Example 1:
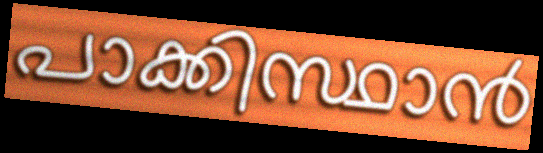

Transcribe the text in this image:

പാക്കിസ്ഥാൻ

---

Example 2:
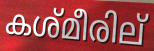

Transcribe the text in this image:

കശ്മീരില്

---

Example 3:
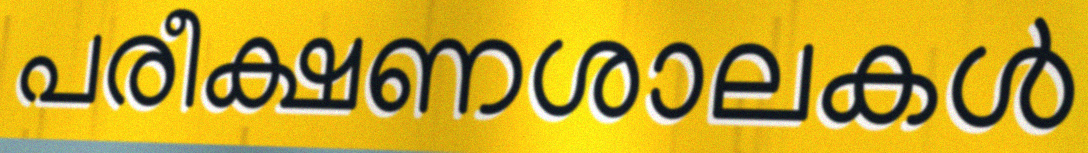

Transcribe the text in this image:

പരീക്ഷണശാലകൾ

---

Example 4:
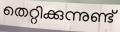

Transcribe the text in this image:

തെറ്റിക്കുന്നുണ്ട്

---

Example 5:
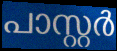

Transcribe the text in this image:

പാസ്റ്റർ